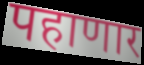
पहाणार